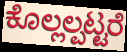
ಕೊಲ್ಲಲ್ಪಟ್ಟರೆ